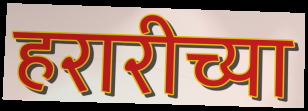
हरारीच्या